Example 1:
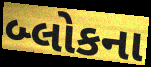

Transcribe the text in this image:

બ્લોકના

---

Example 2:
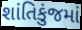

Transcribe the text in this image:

શાંતિકુંજમાં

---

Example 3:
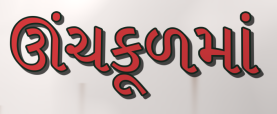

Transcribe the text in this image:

ઊંચકૂળમાં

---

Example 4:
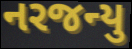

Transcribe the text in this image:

નરજન્યુ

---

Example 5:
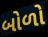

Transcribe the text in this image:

બોળો